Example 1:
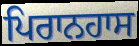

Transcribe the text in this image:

ਪਿਰਾਨਹਾਸ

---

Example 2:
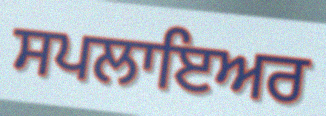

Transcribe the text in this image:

ਸਪਲਾਇਅਰ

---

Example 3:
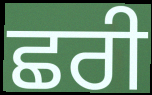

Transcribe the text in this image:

ਛਰੀ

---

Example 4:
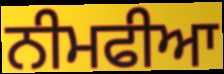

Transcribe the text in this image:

ਨੀਮਫੀਆ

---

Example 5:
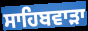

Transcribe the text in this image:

ਸਾਹਿਬਵਾੜਾ